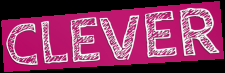
CLEVER